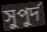
সুপুর্দ